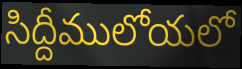
సిద్దీములోయలో